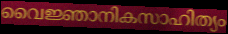
വൈജ്ഞാനികസാഹിത്യം